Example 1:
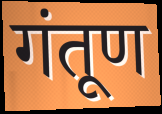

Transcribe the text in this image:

गंतूण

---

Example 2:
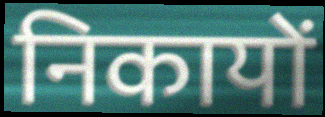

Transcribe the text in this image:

निकायों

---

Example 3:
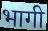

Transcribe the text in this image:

भागी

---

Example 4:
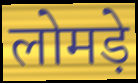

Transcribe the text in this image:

लोमड़े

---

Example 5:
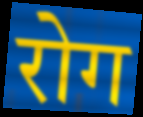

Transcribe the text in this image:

रोग